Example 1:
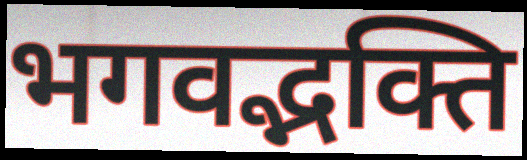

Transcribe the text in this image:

भगवद्भक्ति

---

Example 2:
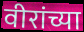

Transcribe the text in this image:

वीरांच्या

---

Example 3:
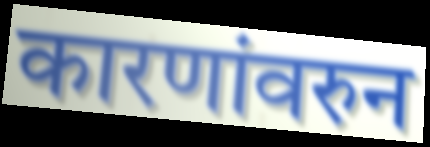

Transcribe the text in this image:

कारणांवरुन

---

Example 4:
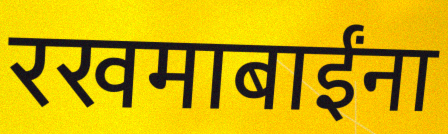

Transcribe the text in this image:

रखमाबाईंना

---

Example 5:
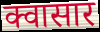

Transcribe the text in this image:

क्वासार